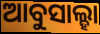
ଆବୁସାଲ୍ହା